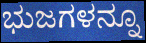
ಭುಜಗಳನ್ನೂ